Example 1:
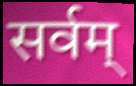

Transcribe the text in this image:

सर्वम्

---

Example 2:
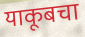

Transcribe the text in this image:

याकूबचा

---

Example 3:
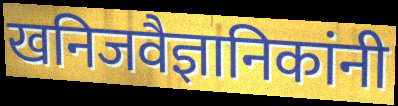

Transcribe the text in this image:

खनिजवैज्ञानिकांनी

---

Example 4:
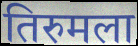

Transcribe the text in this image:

तिरुमला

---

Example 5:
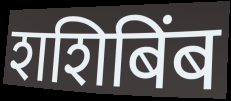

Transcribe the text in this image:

शशिबिंब